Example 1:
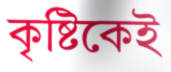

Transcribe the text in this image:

কৃষ্টিকেই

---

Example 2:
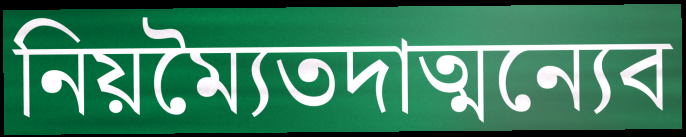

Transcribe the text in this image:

নিয়ম্যৈতদাত্মন্যেব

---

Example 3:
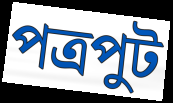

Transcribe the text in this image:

পত্রপুট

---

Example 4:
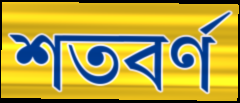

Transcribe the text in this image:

শতবর্ণ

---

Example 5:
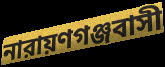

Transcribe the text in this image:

নারায়ণগঞ্জবাসী